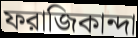
ফরাজিকান্দা